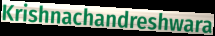
Krishnachandreshwara